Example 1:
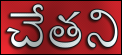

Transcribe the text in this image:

చేతని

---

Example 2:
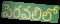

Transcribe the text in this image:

పెరవలిలో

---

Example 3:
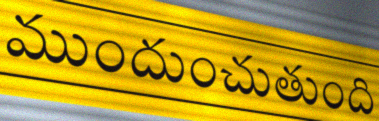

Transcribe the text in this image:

ముందుంచుతుంది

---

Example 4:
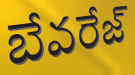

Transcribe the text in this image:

బేవరేజ్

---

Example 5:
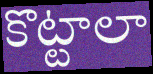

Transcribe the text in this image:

కొట్టాలా